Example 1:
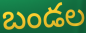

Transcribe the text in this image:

బండల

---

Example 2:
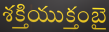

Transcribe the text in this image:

శక్తియుక్తంబై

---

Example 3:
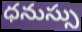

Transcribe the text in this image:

ధనుస్సు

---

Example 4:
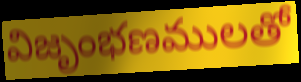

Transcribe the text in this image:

విజృంభణములతో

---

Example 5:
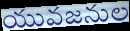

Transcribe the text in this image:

యువజనుల